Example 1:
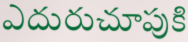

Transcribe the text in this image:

ఎదురుచూపుకి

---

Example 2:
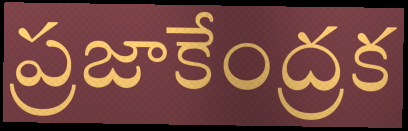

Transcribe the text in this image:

ప్రజాకేంద్రక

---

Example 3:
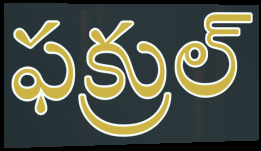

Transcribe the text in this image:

ఫక్రుల్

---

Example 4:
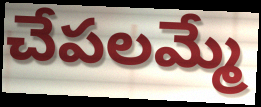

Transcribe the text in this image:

చేపలమ్మే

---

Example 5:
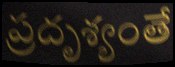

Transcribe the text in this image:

ప్రదృశ్యంతే